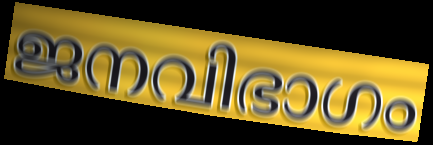
ജനവിഭാഗം